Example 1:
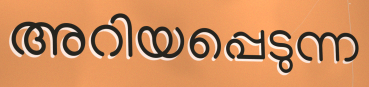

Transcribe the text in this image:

അറിയപ്പെടുന്ന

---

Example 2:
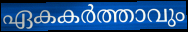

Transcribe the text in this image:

ഏകകർത്താവും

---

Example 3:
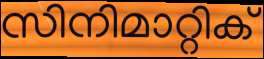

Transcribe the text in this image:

സിനിമാറ്റിക്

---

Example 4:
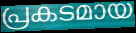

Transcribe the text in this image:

പ്രകടമായ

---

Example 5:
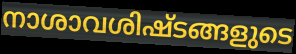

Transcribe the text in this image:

നാശാവശിഷ്ടങ്ങളുടെ